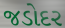
જડોદર